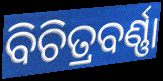
ବିଚିତ୍ରବର୍ଣ୍ଣା